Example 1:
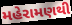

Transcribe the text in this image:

મહેરામણથી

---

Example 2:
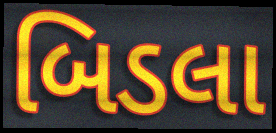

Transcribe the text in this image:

બિડલા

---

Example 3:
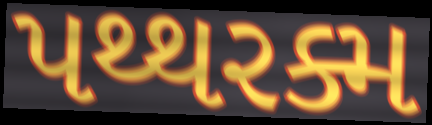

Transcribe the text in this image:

પથ્થરક્મ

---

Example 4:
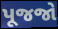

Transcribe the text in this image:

પૂજજો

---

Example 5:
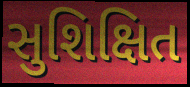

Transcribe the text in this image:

સુશિક્ષિત